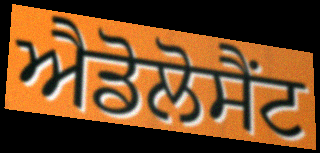
ਐਡੋਲੋਸੈਂਟ